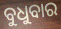
ବୁଧୁବାର